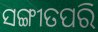
ସଙ୍ଗୀତପରି